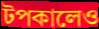
টপকালেও